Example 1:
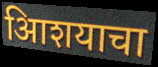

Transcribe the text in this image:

आिशयाचा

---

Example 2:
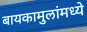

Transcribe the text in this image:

बायकामुलांमध्ये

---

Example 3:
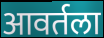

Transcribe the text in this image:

आवर्तला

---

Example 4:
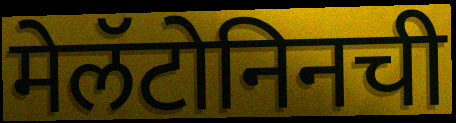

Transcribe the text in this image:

मेलॅटोनिनची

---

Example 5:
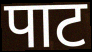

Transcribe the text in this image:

पाट